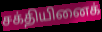
சக்தியினைக்